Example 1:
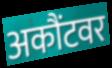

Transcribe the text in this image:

अकौंटवर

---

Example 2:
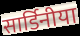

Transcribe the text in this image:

सार्डिनीया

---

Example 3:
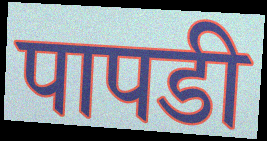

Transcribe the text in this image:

पापडी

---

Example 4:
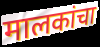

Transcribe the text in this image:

मालकांचा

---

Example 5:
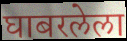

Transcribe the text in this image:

घाबरलेला